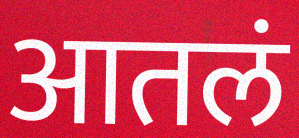
आतलं